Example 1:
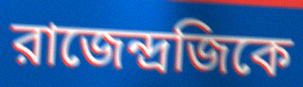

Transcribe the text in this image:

রাজেন্দ্রজিকে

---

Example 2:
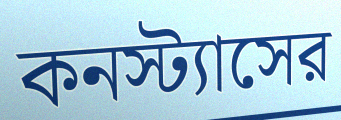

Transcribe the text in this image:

কনস্ট্যাসের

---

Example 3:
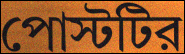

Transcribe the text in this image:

পোস্টটির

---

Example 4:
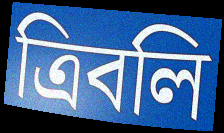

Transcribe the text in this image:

ত্রিবলি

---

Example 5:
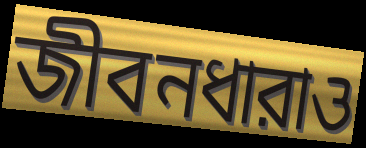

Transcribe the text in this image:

জীবনধারাও